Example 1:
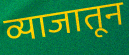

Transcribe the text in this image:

व्याजातून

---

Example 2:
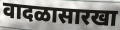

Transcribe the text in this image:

वादळासारखा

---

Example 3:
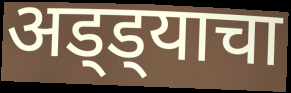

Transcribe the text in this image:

अड्ड्याचा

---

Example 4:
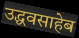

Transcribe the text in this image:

उद्धवसाहेब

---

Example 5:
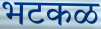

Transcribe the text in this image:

भटकळ